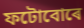
ফটোবোৰে